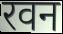
रवन